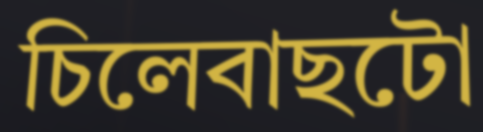
চিলেবাছটো